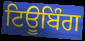
ਟਿਊਬਿੰਗ